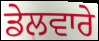
ਡੇਲਵਾਰੇ